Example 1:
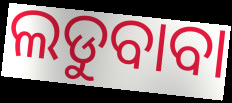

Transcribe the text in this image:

ଲଡୁବାବା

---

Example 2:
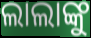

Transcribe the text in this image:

ଲାଲାଙ୍କୁ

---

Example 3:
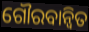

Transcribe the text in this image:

ଗୌରବାନ୍ୱିତ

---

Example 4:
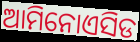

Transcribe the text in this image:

ଆମିନୋଏସିଡ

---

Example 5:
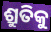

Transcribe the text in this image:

ଶ୍ରୁତିକୁ